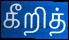
கீறித்